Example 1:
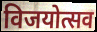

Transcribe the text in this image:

विजयोत्सव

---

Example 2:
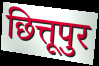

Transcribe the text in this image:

छित्तूपुर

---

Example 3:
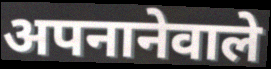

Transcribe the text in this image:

अपनानेवाले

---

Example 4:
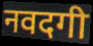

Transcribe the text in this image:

नवदगी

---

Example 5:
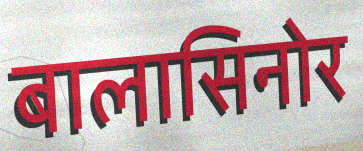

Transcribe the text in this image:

बालासिनोर